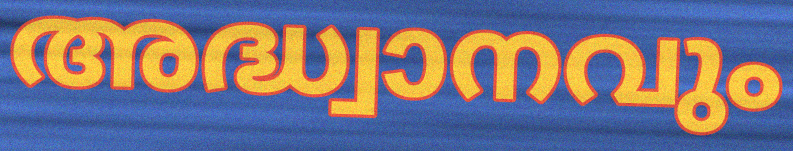
അദ്ധ്വാനവും